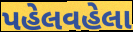
પહેલવહેલા